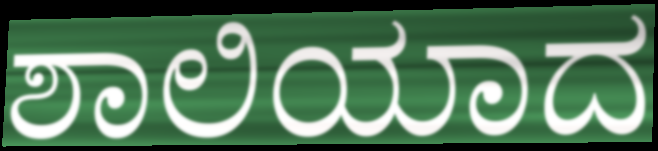
ಶಾಲಿಯಾದ